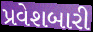
પ્રવેશબારી